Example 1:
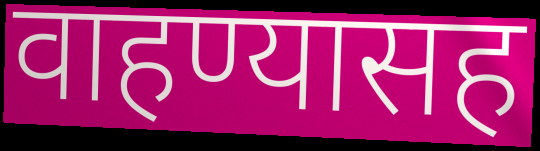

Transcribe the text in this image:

वाहण्यासह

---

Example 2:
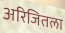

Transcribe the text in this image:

अरिजितला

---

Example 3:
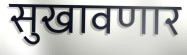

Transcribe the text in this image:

सुखावणार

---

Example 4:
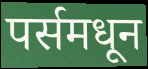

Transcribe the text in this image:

पर्समधून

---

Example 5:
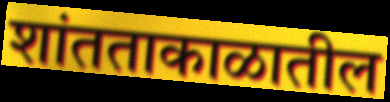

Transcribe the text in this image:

शांतताकाळातील